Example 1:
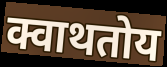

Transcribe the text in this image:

क्वाथतोय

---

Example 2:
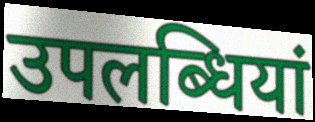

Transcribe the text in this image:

उपलब्धियां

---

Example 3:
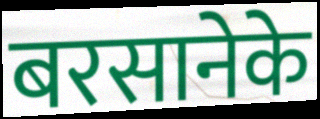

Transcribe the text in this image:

बरसानेके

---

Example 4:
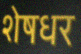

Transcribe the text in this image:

शेषधर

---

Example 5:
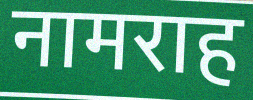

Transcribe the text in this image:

नामराह